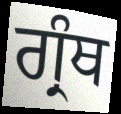
ਗ੍ਰੰਥ